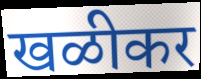
खळीकर